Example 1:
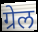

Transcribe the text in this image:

ग्रेल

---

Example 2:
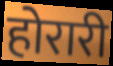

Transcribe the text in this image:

होरारी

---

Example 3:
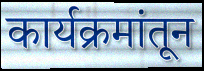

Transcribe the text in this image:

कार्यक्रमांतून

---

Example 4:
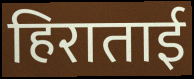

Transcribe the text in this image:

हिराताई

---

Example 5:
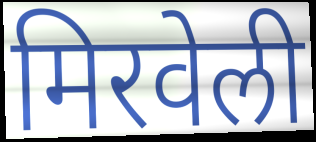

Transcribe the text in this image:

मिरवेली